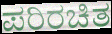
ಪರಿರಚಿತ